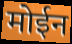
मोईन